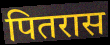
पितरास